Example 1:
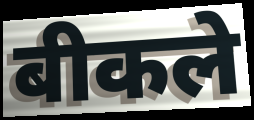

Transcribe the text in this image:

बीकले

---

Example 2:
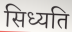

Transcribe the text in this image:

सिध्यति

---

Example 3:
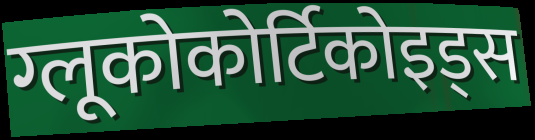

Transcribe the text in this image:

ग्लूकोकोर्टिकोइड्स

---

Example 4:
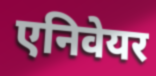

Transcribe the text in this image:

एनिवेयर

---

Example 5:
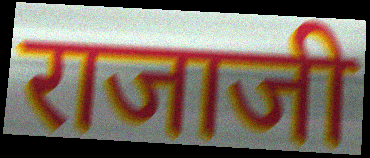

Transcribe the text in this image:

राजाजी